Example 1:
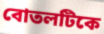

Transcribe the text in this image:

বোতলটিকে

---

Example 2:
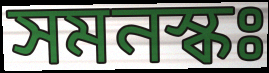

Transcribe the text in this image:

সমনস্কঃ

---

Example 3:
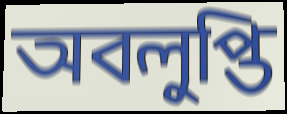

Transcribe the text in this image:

অবলুপ্তি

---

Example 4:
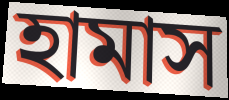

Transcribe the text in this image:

হামাস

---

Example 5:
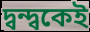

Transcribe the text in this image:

দ্বন্দ্বকেই